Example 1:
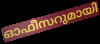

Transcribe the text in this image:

ഓഫീസറുമായി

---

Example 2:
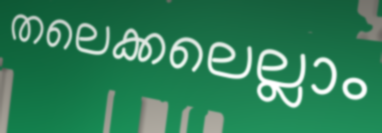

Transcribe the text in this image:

തലെക്കലെല്ലാം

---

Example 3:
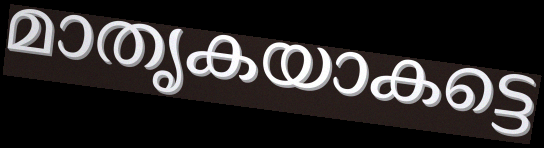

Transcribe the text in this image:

മാതൃകയാകട്ടെ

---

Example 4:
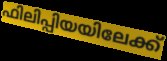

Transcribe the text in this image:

ഫിലിപ്പിയയിലേക്ക്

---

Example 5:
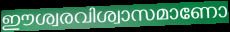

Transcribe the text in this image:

ഈശ്വരവിശ്വാസമാണോ